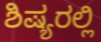
ಶಿಷ್ಯರಲ್ಲಿ